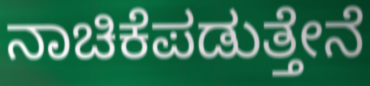
ನಾಚಿಕೆಪಡುತ್ತೇನೆ